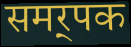
समर्पक